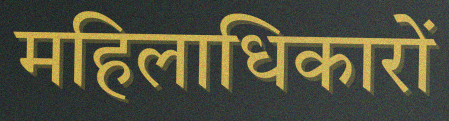
महिलाधिकारों